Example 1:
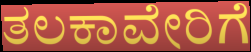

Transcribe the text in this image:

ತಲಕಾವೇರಿಗೆ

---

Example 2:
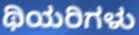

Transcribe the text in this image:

ಥಿಯರಿಗಳು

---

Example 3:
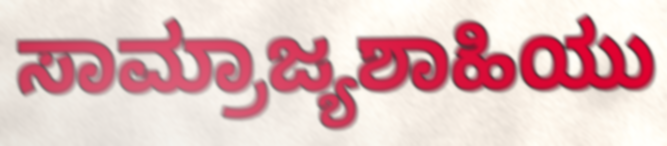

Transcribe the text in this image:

ಸಾಮ್ರಾಜ್ಯಶಾಹಿಯು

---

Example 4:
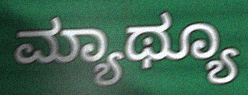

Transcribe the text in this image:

ಮ್ಯಾಥ್ಯೂ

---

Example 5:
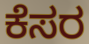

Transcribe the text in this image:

ಕೆಸರ